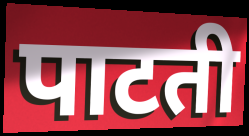
पाटती